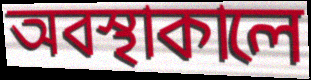
অবস্থাকালে